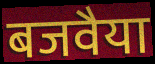
बजवैया